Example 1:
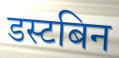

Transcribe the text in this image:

डस्टबिन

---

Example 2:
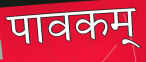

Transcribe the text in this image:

पावकम्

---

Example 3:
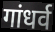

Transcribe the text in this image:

गांधर्व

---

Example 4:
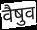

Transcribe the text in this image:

वैषुव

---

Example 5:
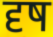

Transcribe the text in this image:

दृष